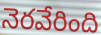
నెరవేరింది